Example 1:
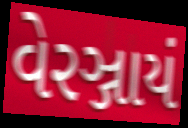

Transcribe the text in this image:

વેરઞ્જાયં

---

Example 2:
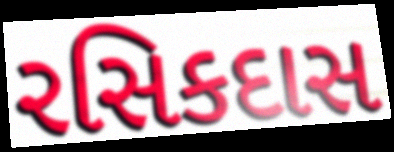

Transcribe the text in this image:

રસિકદાસ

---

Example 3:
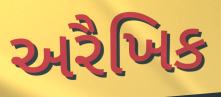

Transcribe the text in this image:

અરૈખિક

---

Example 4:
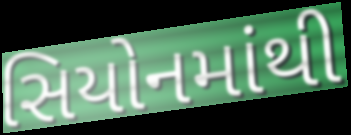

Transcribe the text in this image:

સિયોનમાંથી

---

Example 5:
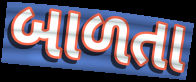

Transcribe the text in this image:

બાળતા